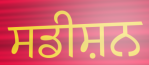
ਸਡੀਸ਼ਨ